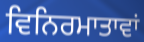
ਵਿਨਿਰਮਾਤਾਵਾਂ